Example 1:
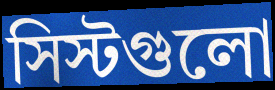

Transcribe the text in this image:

সিস্টগুলো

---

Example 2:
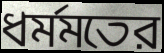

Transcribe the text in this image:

ধর্মমতের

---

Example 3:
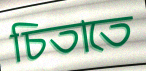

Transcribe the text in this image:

চিতাতে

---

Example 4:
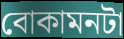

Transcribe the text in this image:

বোকামনটা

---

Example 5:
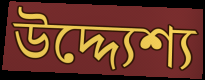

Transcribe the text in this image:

উদ্দ্যেশ্য